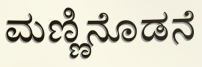
ಮಣ್ಣಿನೊಡನೆ